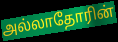
அல்லாதோரின்